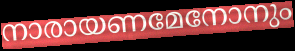
നാരായണമേനോനും